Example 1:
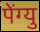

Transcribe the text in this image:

पेंग्यु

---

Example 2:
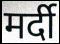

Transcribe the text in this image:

मर्दी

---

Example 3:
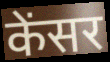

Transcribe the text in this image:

केंसर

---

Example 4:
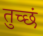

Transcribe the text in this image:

तुच्छं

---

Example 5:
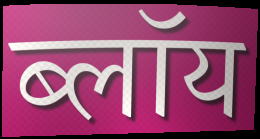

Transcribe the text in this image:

ब्लॉय